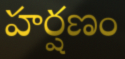
హర్షణం